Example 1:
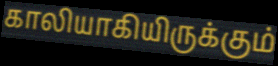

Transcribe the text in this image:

காலியாகியிருக்கும்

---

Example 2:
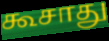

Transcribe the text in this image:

கூசாது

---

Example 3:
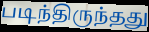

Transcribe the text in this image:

படிந்திருந்தது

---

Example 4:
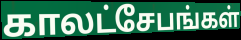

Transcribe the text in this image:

காலட்சேபங்கள்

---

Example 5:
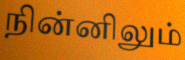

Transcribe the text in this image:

நின்னிலும்